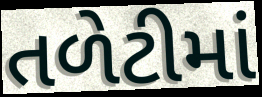
તળેટીમાં